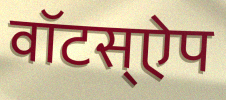
वॉटस्ऐप